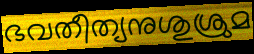
ഭവതീത്യനുശുശ്രുമ